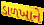
ડાળખાને